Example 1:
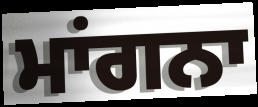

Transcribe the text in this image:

ਮਾਂਗਨਾ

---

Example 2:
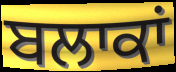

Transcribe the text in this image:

ਬਲਾਕਾਂ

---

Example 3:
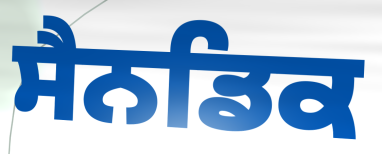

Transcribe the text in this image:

ਸੈਨਡਿਕ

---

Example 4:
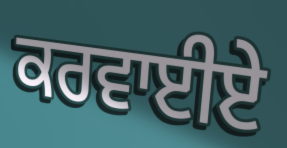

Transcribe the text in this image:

ਕਰਵਾਈਏ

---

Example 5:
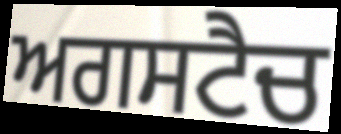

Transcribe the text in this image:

ਅਗਸਟੈਚ